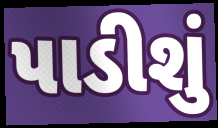
પાડીશું